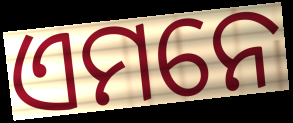
ଏମନେ